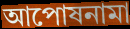
আপোষনামা